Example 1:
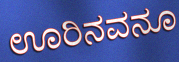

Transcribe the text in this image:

ಊರಿನವನೂ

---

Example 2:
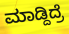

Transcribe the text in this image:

ಮಾಡ್ದಿದ್ರೆ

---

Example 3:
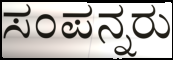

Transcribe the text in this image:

ಸಂಪನ್ನರು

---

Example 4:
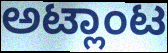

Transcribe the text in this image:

ಅಟ್ಲಾಂಟ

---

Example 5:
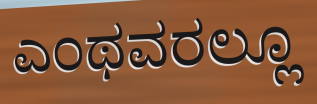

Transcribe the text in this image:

ಎಂಥವರಲ್ಲೂ